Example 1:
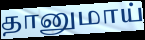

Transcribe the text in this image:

தானுமாய்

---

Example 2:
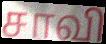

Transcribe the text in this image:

சாவி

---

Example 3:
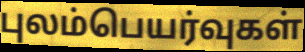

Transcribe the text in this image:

புலம்பெயர்வுகள்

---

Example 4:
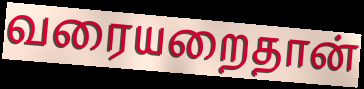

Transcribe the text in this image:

வரையறைதான்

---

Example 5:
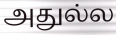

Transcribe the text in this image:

அதுல்ல